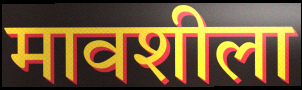
मावशीला